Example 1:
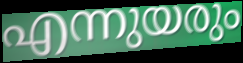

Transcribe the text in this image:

എന്നുയരും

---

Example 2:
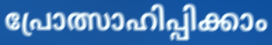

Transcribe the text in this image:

പ്രോത്സാഹിപ്പിക്കാം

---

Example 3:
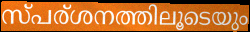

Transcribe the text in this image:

സ്പര്ശനത്തിലൂടെയും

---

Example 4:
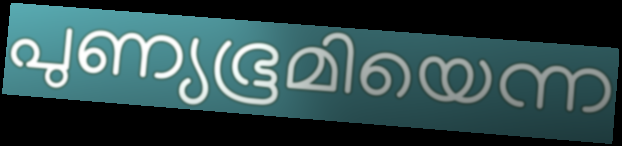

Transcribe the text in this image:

പുണ്യഭൂമിയെന്ന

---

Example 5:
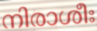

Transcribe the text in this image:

നിരാശീഃ